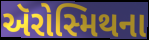
ઍરોસ્મિથના